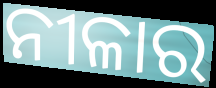
ନୀଳାର